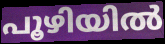
പൂഴിയിൽ